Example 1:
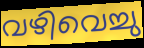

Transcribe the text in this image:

വഴിവെച്ചു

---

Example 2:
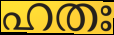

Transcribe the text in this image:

ഹതഃ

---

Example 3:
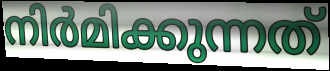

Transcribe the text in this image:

നിർമിക്കുന്നത്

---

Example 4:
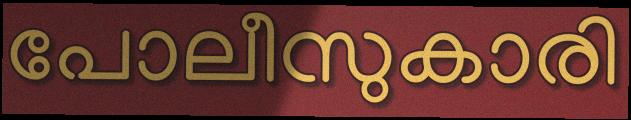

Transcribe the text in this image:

പോലീസുകാരി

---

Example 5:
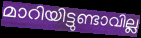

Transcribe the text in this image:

മാറിയിട്ടുണ്ടാവില്ല